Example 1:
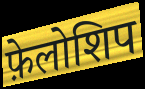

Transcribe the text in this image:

फ़ेलोशिप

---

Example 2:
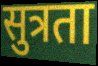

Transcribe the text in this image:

सुत्रता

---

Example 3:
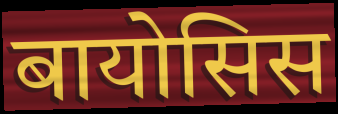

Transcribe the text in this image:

बायोसिस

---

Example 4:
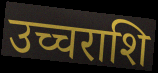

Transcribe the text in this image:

उच्चराशि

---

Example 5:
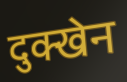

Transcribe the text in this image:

दुक्खेन